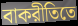
বাকরীতিতে